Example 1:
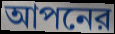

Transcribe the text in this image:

আপনের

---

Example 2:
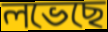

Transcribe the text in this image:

লভেছে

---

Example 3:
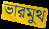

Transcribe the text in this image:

ভারমুথ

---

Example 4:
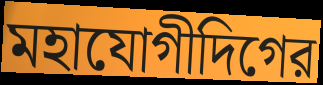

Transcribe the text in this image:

মহাযোগীদিগের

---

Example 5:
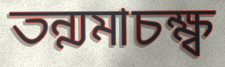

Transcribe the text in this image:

তন্মমাচক্ষ্ব